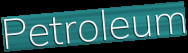
Petroleum